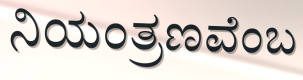
ನಿಯಂತ್ರಣವೆಂಬ